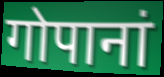
गोपानां